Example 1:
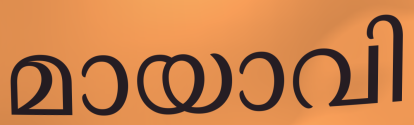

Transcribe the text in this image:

മായാവി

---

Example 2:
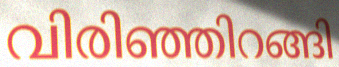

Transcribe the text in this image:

വിരിഞ്ഞിറങ്ങി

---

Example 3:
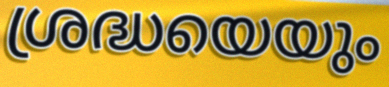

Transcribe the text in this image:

ശ്രദ്ധയെയും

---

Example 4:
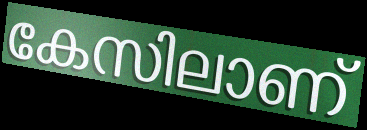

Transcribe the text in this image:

കേസിലാണ്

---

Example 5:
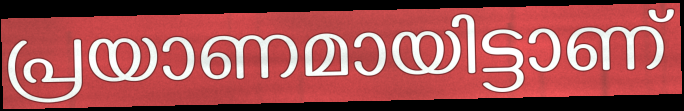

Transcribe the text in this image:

പ്രയാണമായിട്ടാണ്